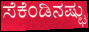
ಸೆಕೆಂಡಿನಷ್ಟು